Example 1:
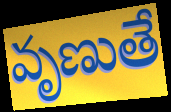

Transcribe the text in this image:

వృణుతే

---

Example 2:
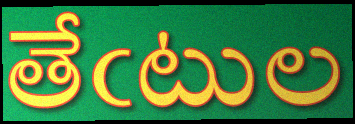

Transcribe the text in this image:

తేఁటుల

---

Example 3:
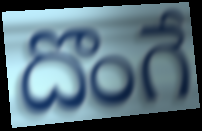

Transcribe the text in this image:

దొంగే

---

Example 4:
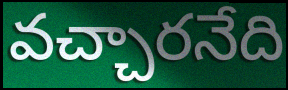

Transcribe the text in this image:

వచ్చారనేది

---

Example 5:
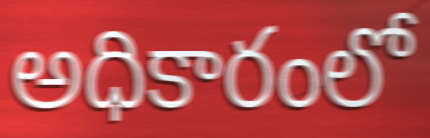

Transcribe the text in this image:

అధికారంలో